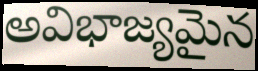
అవిభాజ్యమైన